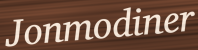
Jonmodiner